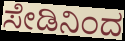
ಸೇಡಿನಿಂದ